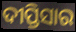
ଦୀପ୍ତିସାର